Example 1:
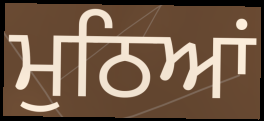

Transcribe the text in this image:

ਮੁਠਿਆਂ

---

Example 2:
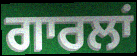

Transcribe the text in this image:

ਗਾਰਲਾਂ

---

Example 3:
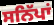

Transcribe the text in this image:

ਸਨਿੱਪਾਂ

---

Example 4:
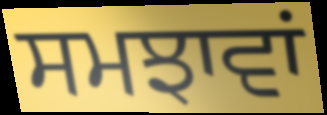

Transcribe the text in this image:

ਸਮਝਾਵਾਂ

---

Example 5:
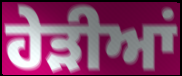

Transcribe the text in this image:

ਹੇੜੀਆਂ